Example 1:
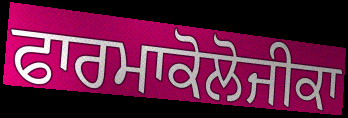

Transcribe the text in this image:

ਫਾਰਮਾਕੋਲੋਜੀਕਾ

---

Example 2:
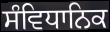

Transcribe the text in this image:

ਸੰਵਿਧਾਨਿਕ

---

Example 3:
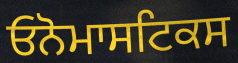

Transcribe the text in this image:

ਓਨੋਮਾਸਟਿਕਸ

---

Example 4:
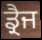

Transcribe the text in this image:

ਡ੍ਰੈਜ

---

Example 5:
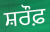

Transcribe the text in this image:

ਸ਼ਰੌਫ਼